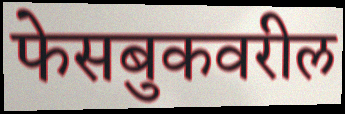
फेसबुकवरील